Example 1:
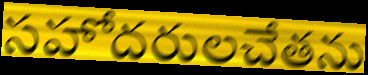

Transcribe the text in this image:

సహోదరులచేతను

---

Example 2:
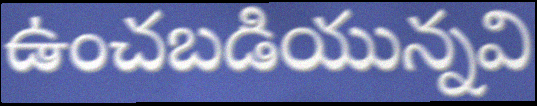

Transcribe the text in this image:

ఉంచబడియున్నవి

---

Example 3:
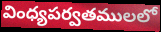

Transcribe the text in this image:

వింధ్యపర్వతములలో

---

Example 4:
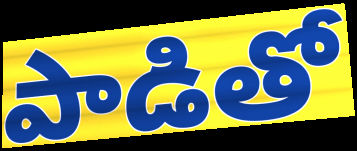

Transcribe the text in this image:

పాడితో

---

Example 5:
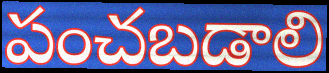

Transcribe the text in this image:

పంచబడాలి